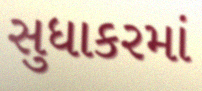
સુધાકરમાં